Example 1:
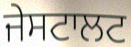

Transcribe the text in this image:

ਜੇਸਟਾਲਟ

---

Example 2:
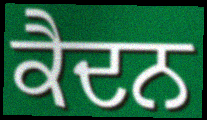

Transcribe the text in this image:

ਕੈਦਨ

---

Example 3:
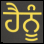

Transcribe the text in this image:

ਹੈਨੂੰ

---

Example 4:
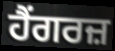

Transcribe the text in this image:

ਹੈਂਗਰਜ਼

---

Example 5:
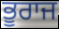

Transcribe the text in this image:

ਭੂਰਾਜ